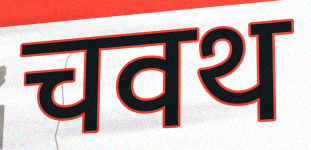
चवथ